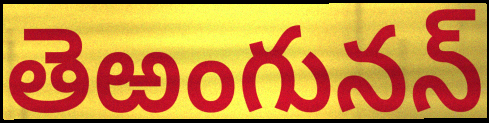
తెఱంగునన్